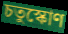
চতুস্কোণ